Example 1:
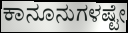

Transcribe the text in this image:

ಕಾನೂನುಗಳಷ್ಟೇ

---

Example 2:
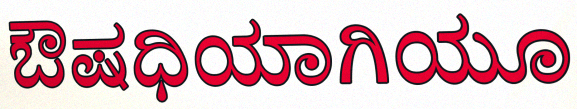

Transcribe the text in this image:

ಔಷಧಿಯಾಗಿಯೂ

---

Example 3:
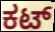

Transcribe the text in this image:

ಕಟ್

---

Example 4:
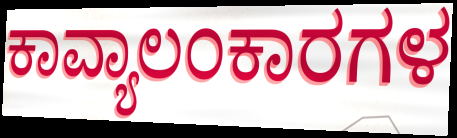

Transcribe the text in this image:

ಕಾವ್ಯಾಲಂಕಾರಗಳ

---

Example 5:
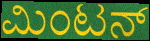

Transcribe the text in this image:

ಮಿಂಟನ್